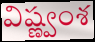
విష్ణ్వంశ